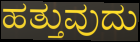
ಹತ್ತುವುದು